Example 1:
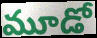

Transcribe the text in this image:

మూడో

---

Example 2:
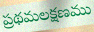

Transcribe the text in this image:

ప్రథమలక్షణము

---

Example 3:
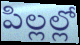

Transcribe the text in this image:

పిల్లల్లో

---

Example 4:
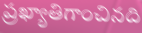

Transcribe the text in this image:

ప్రఖ్యాతిగాంచినది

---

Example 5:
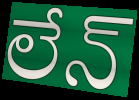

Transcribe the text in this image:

లేన్